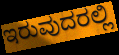
ಇರುವುದರಲ್ಲಿ